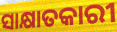
ସାକ୍ଷାତକାରୀ